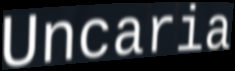
Uncaria